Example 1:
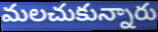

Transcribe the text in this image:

మలచుకున్నారు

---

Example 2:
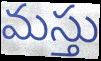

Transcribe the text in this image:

మస్తు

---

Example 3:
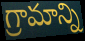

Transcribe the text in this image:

గ్రామాన్ని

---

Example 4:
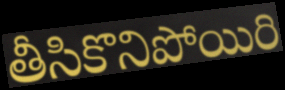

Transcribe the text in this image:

తీసికొనిపోయిరి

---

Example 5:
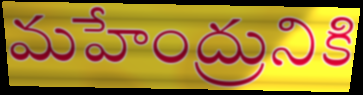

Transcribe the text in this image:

మహేంద్రునికి